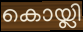
കൊയ്ലി